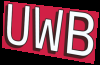
UWB